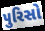
પુરિસો